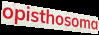
opisthosoma